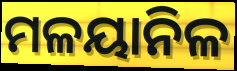
ମଳୟାନିଳ